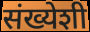
संख्येशी